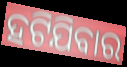
ହଟିଯିବାର